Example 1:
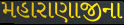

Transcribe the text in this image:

મહારાણાજીના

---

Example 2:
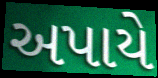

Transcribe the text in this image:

અપાયે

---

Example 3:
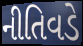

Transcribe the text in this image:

નીતિવડે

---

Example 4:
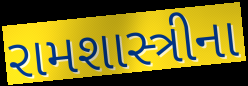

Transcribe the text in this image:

રામશાસ્ત્રીના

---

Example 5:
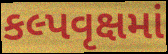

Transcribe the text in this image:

કલ્પવૃક્ષમાં